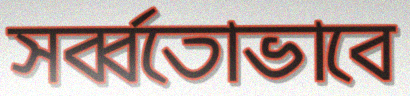
সর্ব্বতোভাবে